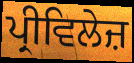
ਪ੍ਰੀਵਿਲੇਜ਼